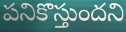
పనికొస్తుందని